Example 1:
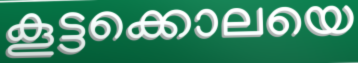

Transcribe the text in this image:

കൂട്ടക്കൊലയെ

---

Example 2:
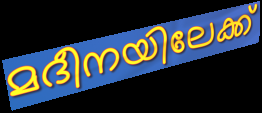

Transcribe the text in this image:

മദീനയിലേക്ക്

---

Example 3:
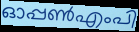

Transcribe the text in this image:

ഓപ്പൺഎംപി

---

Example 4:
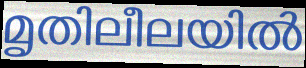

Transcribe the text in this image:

മൃതിലീലയിൽ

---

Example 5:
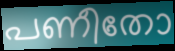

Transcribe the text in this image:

പണീതോ